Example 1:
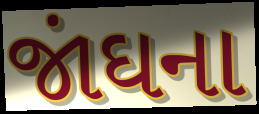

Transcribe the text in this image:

જાંઘના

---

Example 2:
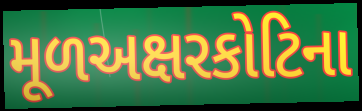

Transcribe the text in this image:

મૂળઅક્ષરકોટિના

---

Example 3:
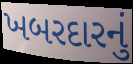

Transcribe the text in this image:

ખબરદારનું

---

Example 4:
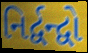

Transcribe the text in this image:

નિર્દ્વન્દ્વો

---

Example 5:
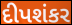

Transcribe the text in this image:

દીપશંકર